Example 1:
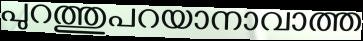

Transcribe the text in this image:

പുറത്തുപറയാനാവാത്ത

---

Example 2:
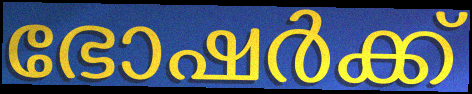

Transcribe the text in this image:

ഭോഷർക്ക്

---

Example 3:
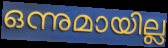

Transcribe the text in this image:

ഒന്നുമായില്ല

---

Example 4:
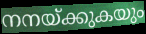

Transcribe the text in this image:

നനയ്ക്കുകയും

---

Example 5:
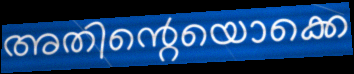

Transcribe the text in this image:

അതിന്റെയൊക്കെ